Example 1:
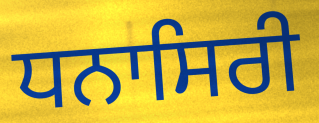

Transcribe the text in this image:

ਧਨਾਸਿਰੀ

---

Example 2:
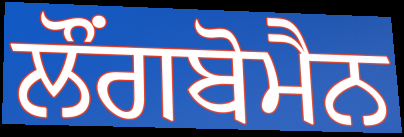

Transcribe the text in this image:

ਲੌਂਗਬੋਮੈਨ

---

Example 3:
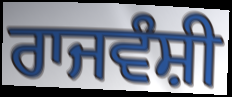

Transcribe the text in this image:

ਰਾਜਵੰਸ਼ੀ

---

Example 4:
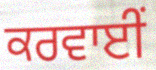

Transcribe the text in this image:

ਕਰਵਾਈਂ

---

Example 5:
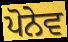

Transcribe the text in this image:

ਪੋਨੇਵ